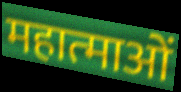
महात्‍माओं